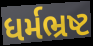
ધર્મભ્રષ્ટ